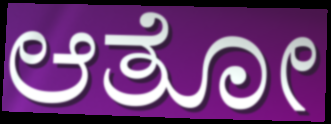
ಆತೋ